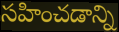
సహించడాన్ని